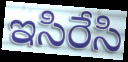
ఇసిరేసి